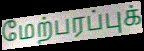
மேற்பரப்புக்